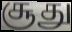
சூது